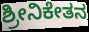
ಶ್ರೀನಿಕೇತನ